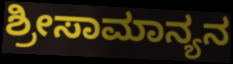
ಶ್ರೀಸಾಮಾನ್ಯನ